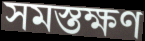
সমস্তক্ষণ